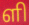
ளி